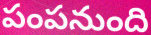
పంపనుంది